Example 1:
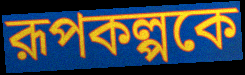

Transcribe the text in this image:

রূপকল্পকে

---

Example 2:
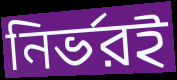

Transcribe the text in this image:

নির্ভরই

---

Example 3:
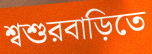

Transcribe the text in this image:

শ্বশুরবাড়িতে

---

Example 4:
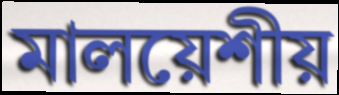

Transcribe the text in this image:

মালয়েশীয়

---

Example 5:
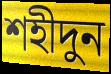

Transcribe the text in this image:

শহীদুন